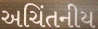
અચિંતનીય